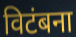
विटंबना